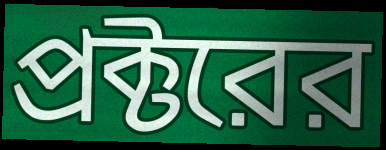
প্রক্টরের